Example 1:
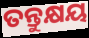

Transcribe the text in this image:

ତନ୍ତୁକ୍ଷୟ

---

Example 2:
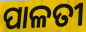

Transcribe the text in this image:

ପାଳତୀ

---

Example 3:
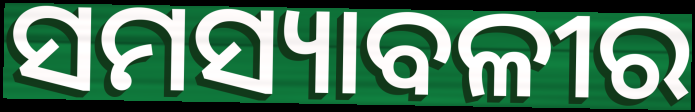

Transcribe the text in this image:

ସମସ୍ୟାବଳୀର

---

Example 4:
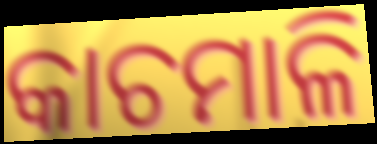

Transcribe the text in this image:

କାଚମାଳି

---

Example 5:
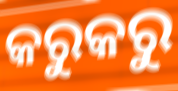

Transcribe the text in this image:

କରୁକରୁ